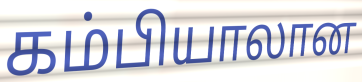
கம்பியாலான